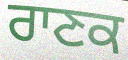
ਰਾਣਕ